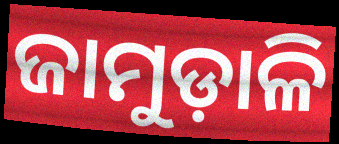
ଜାମୁଡ଼ାଳି